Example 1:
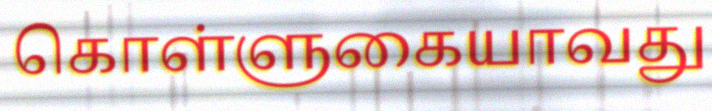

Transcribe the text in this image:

கொள்ளுகையாவது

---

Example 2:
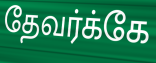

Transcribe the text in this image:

தேவர்க்கே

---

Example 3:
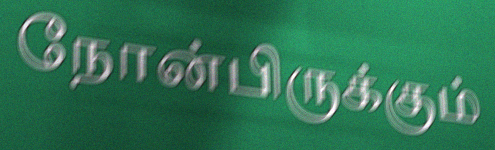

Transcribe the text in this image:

நோன்பிருக்கும்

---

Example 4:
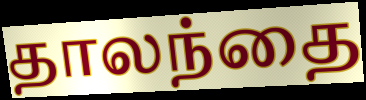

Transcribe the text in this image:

தாலந்தை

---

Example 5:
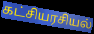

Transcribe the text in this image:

கட்சியரசியல்